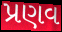
પ્રણવ